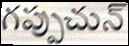
గప్పుచున్